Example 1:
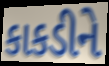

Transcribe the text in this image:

કાકડીને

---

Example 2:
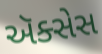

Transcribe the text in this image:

ઍક્સેસ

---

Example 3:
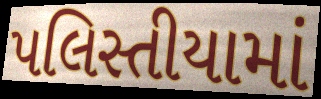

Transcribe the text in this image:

પલિસ્તીયામાં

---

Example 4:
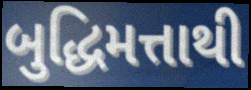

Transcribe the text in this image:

બુદ્ધિમત્તાથી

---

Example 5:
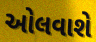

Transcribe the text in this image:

ઓલવાશે